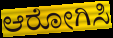
ಆರೋಗಿಸಿ